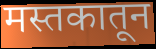
मस्तकातून